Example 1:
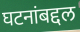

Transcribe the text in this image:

घटनांबद्दल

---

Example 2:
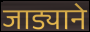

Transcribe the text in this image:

जाड्याने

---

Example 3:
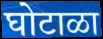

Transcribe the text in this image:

घोटाळा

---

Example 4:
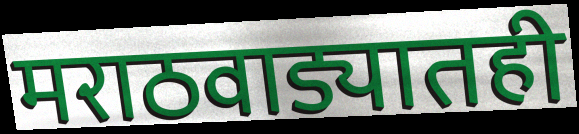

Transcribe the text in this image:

मराठवाड्यातही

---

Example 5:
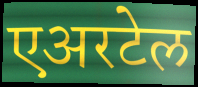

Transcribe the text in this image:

एअरटेल